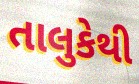
તાલુકેથી